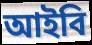
আইবি